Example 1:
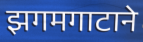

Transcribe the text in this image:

झगमगाटाने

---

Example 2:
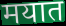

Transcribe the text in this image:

मयात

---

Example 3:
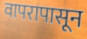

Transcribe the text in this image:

वापरापासून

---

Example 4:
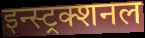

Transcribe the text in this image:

इन्स्ट्रक्शनल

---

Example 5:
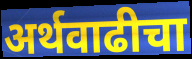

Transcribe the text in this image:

अर्थवाढीचा